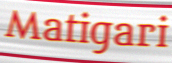
Matigari